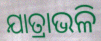
ଯାତ୍ରାଭଳି